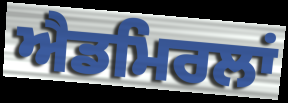
ਐਡਮਿਰਲਾਂ